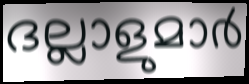
ദല്ലാളുമാർ